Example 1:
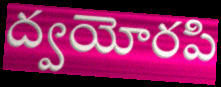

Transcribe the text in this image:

ద్వయోరపి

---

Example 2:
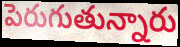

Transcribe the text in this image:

పెరుగుతున్నారు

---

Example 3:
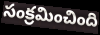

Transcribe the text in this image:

సంక్రమించింది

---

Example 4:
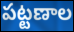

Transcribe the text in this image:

పట్టణాల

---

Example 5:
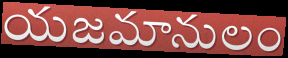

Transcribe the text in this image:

యజమానులం